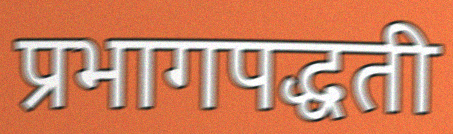
प्रभागपद्धती